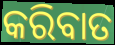
କରିବାତ